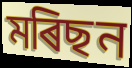
মৰিছন